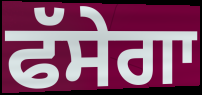
ਫੱਸੇਗਾ